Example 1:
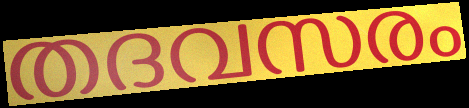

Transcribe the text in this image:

തദവസരം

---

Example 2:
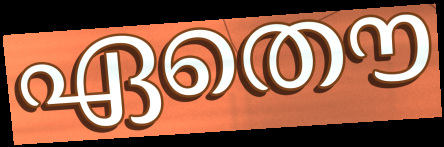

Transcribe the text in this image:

ഏതൌ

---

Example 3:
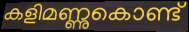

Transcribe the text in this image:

കളിമണ്ണുകൊണ്ട്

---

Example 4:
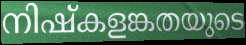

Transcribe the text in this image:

നിഷ്കളങ്കതയുടെ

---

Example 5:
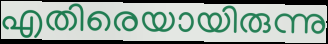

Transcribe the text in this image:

എതിരെയായിരുന്നു